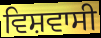
ਵਿਸ਼ਵਾਸੀ